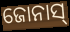
ଜୋନାସ୍